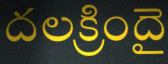
దలక్రిందై